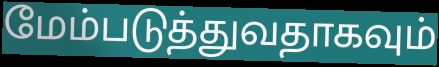
மேம்படுத்துவதாகவும்